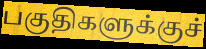
பகுதிகளுக்குச்